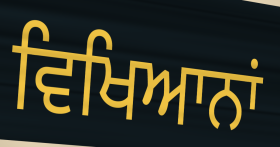
ਵਿਖਿਆਨਾਂ